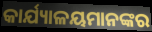
କାର୍ଯ୍ୟାଳୟମାନଙ୍କର